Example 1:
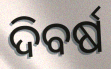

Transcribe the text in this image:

ଦିବର୍ଷ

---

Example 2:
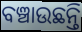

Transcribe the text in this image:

ବଞ୍ଚାଉଛନ୍ତି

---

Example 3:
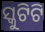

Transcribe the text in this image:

ସ୍କୁଟିଟି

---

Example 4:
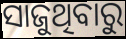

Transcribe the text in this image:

ସାଜୁଥିବାରୁ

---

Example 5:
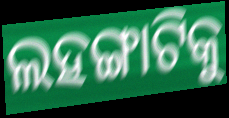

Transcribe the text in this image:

ଲହଙ୍ଗାଟିକୁ